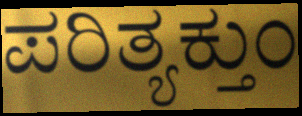
ಪರಿತ್ಯಕ್ತುಂ